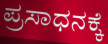
ಪ್ರಸಾಧನಕ್ಕೆ